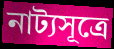
নাট্যসূত্রে